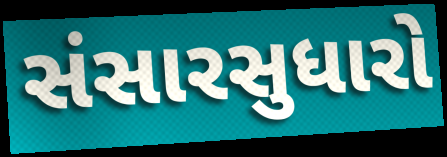
સંસારસુધારો